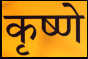
कृष्णे